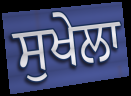
ਸੁਖੇਲਾ